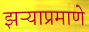
झऱ्याप्रमाणे